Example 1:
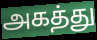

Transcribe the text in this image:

அகத்து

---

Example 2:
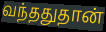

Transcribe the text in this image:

வந்ததுதான்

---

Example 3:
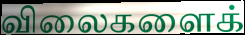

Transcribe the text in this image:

விலைகளைக்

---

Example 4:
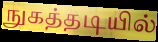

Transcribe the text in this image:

நுகத்தடியில்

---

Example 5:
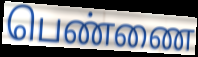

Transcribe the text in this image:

பெண்ணை